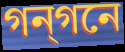
গন্গনে